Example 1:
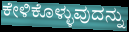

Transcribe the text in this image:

ಕೇಳಿಕೊಳ್ಳುವುದನ್ನು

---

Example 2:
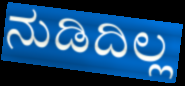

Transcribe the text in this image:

ನುಡಿದಿಲ್ಲ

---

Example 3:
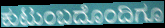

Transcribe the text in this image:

ಕುಟುಂಬದೊಂದಿಗೂ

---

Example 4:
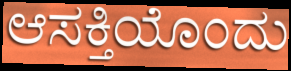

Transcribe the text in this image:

ಆಸಕ್ತಿಯೊಂದು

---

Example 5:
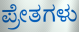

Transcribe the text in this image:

ಪ್ರೇತಗಳು